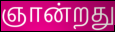
ஞான்றது